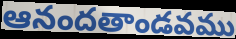
ఆనందతాండవము